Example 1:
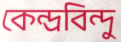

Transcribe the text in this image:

কেন্দ্ৰবিন্দু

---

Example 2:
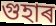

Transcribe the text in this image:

গুহাৰ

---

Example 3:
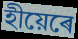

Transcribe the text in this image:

হীয়েৰে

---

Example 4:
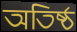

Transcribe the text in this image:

অতিষ্ঠ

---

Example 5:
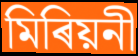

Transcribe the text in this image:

মিৰিয়নী